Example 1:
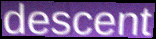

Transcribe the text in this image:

descent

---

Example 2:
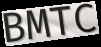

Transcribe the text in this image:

BMTC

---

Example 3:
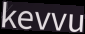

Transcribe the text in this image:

kevvu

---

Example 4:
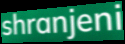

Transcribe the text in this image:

shranjeni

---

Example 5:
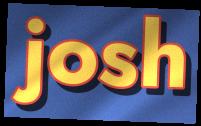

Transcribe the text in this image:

josh